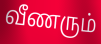
வீணரும்